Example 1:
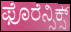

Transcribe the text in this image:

ಫೊರೆನ್ಸಿಕ್ಸ್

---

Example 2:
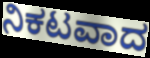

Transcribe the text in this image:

ನಿಕಟವಾದ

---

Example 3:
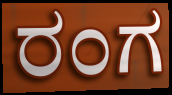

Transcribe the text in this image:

ರಂಗ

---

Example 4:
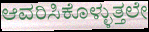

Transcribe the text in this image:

ಆವರಿಸಿಕೊಳ್ಳುತ್ತಲೇ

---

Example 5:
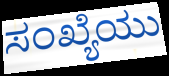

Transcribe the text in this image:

ಸಂಖ್ಯೆಯು